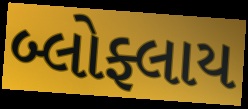
બ્લોફ્લાય